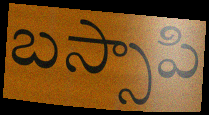
బస్సాపి